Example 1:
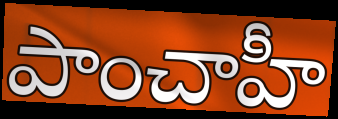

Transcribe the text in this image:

పాంచాహీ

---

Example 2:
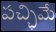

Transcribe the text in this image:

పచ్ఛిమే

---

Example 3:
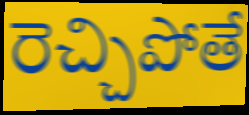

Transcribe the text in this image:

రెచ్చిపోతే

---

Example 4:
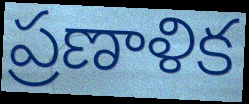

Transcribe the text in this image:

ప్రణాళిక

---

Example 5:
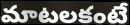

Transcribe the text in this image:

మాటలకంటే